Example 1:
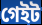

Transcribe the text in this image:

গেইট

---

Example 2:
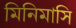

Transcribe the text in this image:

মিনিমাসি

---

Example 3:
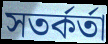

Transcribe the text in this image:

সতর্কর্তা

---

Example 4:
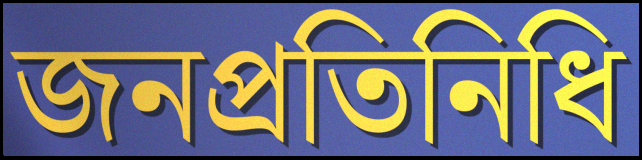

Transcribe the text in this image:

জনপ্রতিনিধি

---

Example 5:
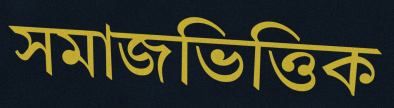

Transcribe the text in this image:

সমাজভিত্তিক